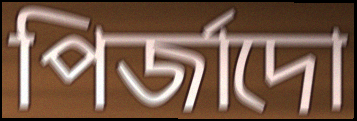
পিৰ্জাদো